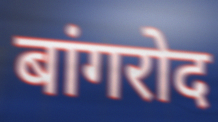
बांगरोद